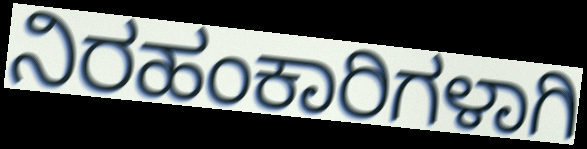
ನಿರಹಂಕಾರಿಗಳಾಗಿ